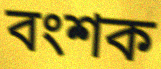
বংশক